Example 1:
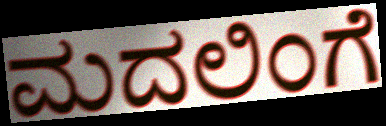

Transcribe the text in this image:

ಮದಲಿಂಗೆ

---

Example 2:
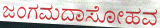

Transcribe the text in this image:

ಜಂಗಮದಾಸೋಹವ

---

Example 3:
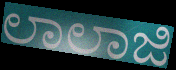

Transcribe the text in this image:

ಲಾಲಾಜಿ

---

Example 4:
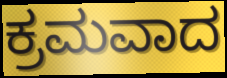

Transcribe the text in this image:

ಕ್ರಮವಾದ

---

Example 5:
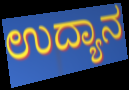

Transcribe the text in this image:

ಉದ್ಯಾನ